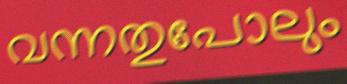
വന്നതുപോലും